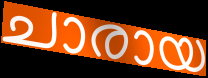
ചാരായ